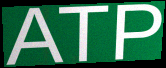
ATP